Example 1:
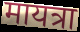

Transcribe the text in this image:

मायत्रा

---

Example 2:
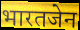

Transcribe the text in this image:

भारतजेन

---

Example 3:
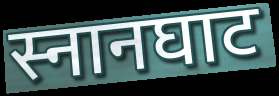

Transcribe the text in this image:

स्नानघाट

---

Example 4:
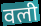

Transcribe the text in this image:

वली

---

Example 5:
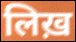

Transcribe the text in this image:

लिख़